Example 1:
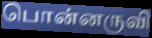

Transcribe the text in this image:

பொன்னருவி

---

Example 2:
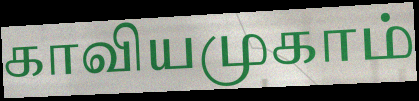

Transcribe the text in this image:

காவியமுகாம்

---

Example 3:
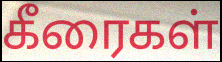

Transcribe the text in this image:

கீரைகள்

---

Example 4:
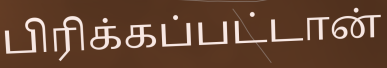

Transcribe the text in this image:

பிரிக்கப்பட்டான்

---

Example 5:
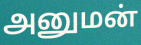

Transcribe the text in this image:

அனுமன்